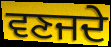
ਵਣਜਦੇ